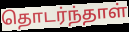
தொடர்ந்தாள்